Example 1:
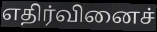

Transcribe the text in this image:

எதிர்வினைச்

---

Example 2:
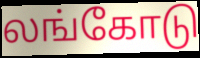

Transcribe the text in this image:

லங்கோடு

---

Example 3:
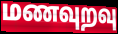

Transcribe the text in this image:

மணவுறவு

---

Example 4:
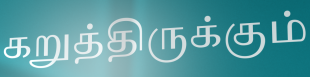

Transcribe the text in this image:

கறுத்திருக்கும்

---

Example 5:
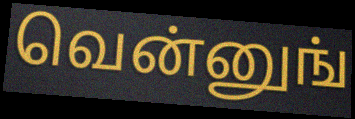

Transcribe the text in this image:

வென்னுங்